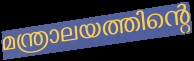
മന്ത്രാലയത്തിന്റെ